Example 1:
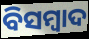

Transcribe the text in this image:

ବିସମ୍ୱାଦ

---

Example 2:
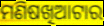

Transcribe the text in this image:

ମଣିଷଖିଆଟାର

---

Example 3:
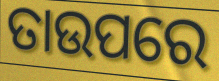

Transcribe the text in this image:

ତାଉପରେ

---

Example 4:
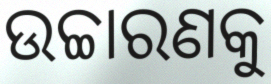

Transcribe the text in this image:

ଉଚ୍ଚାରଣକୁ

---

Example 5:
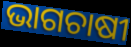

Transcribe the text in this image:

ଭାଗଚାଷୀ